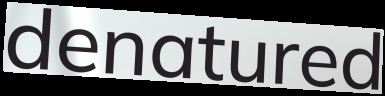
denatured